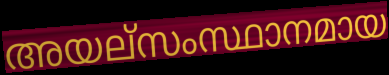
അയല്സംസ്ഥാനമായ